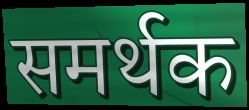
समर्थक